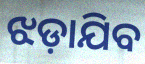
ଝଡ଼ାଯିବ